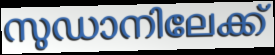
സുഡാനിലേക്ക്